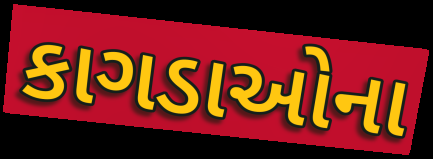
કાગડાઓના